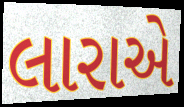
લારાએ